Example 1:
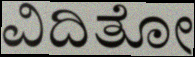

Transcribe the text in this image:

ವಿದಿತೋ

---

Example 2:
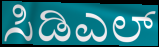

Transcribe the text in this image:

ಸಿಡಿಎಲ್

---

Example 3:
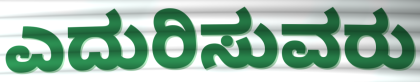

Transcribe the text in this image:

ಎದುರಿಸುವರು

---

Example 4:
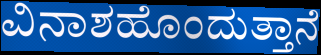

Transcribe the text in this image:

ವಿನಾಶಹೊಂದುತ್ತಾನೆ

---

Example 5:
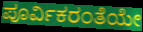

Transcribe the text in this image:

ಪೂರ್ವಿಕರಂತೆಯೇ